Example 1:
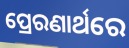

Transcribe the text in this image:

ପ୍ରେରଣାର୍ଥରେ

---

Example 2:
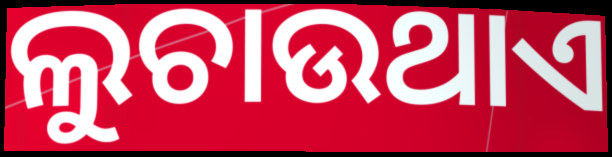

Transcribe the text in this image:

ଲୁଚାଉଥାଏ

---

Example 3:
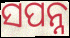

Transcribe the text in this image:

ସପନ୍ନ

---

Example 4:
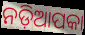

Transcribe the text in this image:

ନଡ଼ିଆପକା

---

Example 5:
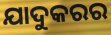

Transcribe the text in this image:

ଯାଦୁକରର